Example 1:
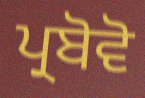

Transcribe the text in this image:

ਪ੍ਰਬੋਵੋ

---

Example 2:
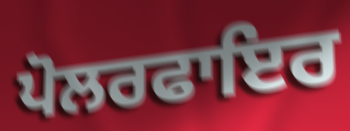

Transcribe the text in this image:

ਪੋਲਰਫਾਇਰ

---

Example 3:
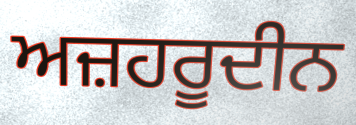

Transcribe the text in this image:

ਅਜ਼ਹਰੂਦੀਨ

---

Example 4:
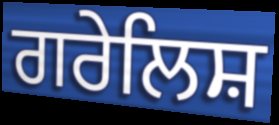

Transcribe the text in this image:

ਗਰੇਲਿਸ਼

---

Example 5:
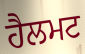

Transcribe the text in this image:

ਹੈਲਮਟ